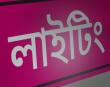
লাইটিং